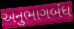
અનુભાગબંધ